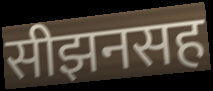
सीझनसह